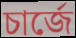
চার্জে